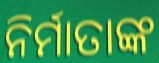
ନିର୍ମାତାଙ୍କ